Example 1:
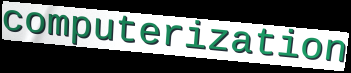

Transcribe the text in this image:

computerization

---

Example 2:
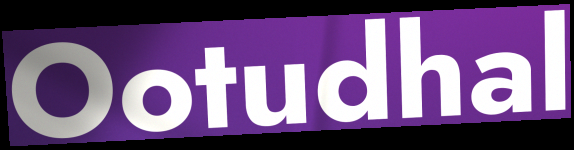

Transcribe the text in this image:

Ootudhal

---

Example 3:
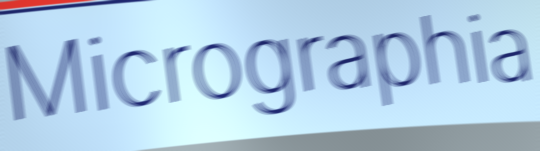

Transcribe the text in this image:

Micrographia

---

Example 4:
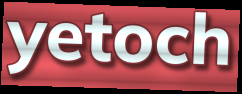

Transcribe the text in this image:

yetoch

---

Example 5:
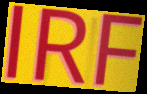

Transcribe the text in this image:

IRF